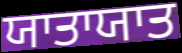
ਯਾਤਾਯਾਤ